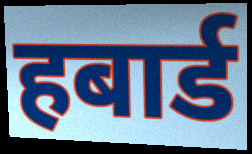
हबार्ड